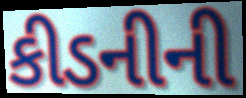
કીડનીની